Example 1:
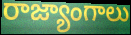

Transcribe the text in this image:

రాజ్యాంగాలు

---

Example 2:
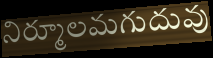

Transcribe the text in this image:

నిర్మూలమగుదువు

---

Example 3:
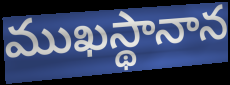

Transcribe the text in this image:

ముఖస్థానాన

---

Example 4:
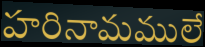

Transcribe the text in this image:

హరినామములే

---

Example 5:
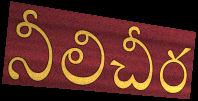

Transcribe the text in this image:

నీలిచీర